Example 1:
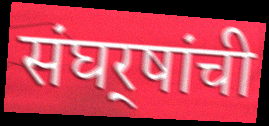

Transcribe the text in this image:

संघर्षांची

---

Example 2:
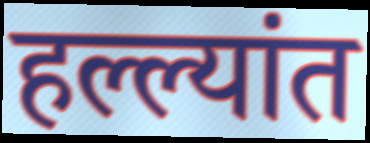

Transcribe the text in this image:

हल्ल्यांत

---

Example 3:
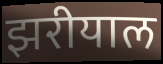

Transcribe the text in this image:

झरीयाल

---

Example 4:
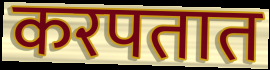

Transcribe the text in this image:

करपतात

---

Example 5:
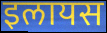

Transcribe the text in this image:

इलायस